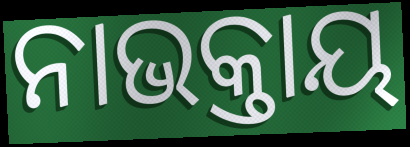
ନାଭକ୍ତାୟ